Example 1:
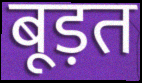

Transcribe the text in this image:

बूड़त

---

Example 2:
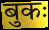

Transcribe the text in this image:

बुकः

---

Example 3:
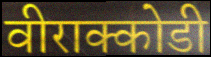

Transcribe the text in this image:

वीराक्कोडी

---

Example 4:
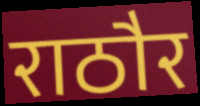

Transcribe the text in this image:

राठौर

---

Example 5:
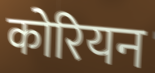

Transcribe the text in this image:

कोरियन